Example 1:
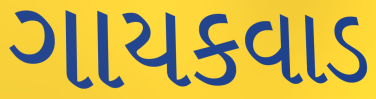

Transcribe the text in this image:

ગાયકવાડ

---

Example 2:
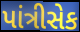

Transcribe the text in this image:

પાંત્રીસેક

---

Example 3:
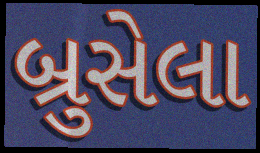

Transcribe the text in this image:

બ્રુસેલા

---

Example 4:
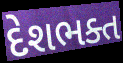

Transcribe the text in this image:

દેશભક્ત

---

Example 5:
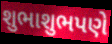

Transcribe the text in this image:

શુભાશુભપણે